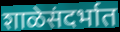
शाळेसंदर्भात